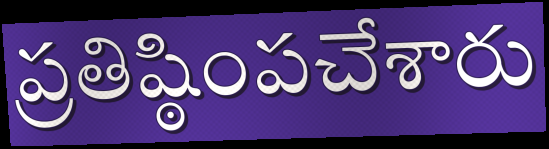
ప్రతిష్ఠింపచేశారు